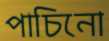
পাচিনো